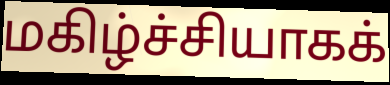
மகிழ்ச்சியாகக்